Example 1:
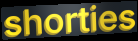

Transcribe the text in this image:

shorties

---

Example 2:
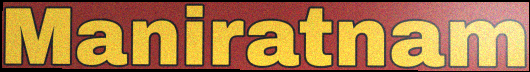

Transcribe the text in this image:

Maniratnam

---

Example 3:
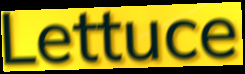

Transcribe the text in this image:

Lettuce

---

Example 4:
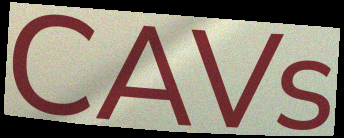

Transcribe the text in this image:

CAVs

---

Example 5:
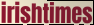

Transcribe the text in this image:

irishtimes